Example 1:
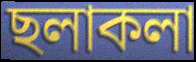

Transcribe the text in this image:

ছলাকলা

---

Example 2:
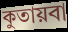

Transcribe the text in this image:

কুতায়বা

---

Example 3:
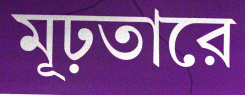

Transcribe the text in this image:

মূঢ়তারে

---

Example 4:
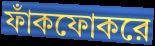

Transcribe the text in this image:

ফাঁকফোকরে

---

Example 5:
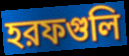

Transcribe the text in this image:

হরফগুলি